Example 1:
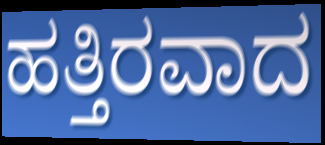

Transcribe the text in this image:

ಹತ್ತಿರವಾದ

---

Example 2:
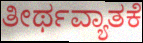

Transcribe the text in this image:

ತೀರ್ಥವ್ಯಾತಕೆ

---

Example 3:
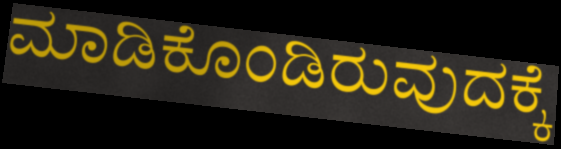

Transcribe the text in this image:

ಮಾಡಿಕೊಂಡಿರುವುದಕ್ಕೆ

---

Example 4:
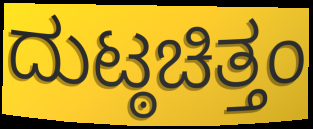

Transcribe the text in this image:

ದುಟ್ಠಚಿತ್ತಂ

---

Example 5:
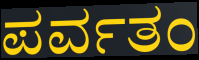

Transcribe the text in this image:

ಪರ್ವತಂ